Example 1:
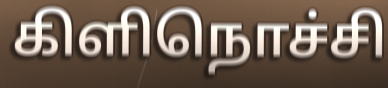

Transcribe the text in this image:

கிளிநொச்சி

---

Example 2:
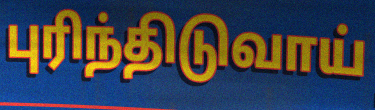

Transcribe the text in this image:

புரிந்திடுவாய்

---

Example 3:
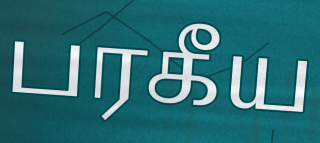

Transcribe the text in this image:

பரகீய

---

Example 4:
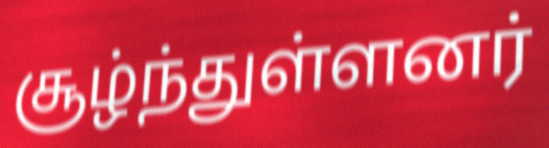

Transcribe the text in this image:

சூழ்ந்துள்ளனர்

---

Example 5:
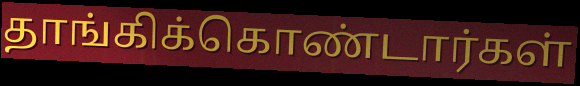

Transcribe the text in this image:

தாங்கிக்கொண்டார்கள்